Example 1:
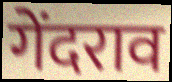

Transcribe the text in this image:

गेंदराव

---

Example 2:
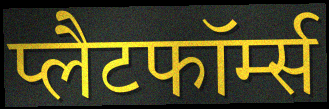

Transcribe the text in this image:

प्लैटफॉर्म्स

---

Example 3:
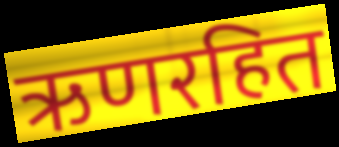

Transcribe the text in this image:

ऋणरहित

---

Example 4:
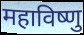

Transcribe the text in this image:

महाविष्णु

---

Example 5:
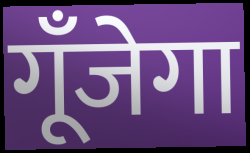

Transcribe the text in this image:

गूँजेगा